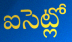
ఐసెట్లో